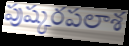
పుష్కరపలాశ